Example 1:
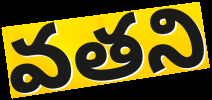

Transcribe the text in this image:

వతని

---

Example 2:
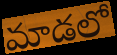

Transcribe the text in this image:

మాడలో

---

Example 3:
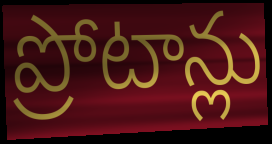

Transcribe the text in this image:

ప్రోటాన్లు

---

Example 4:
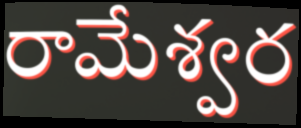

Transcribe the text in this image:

రామేశ్వర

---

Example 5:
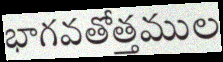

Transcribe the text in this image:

భాగవతోత్తముల